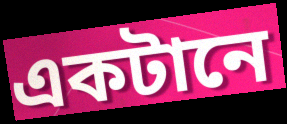
একটানে